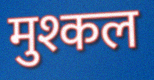
मुश्कल